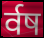
र्वष